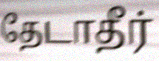
தேடாதீர்